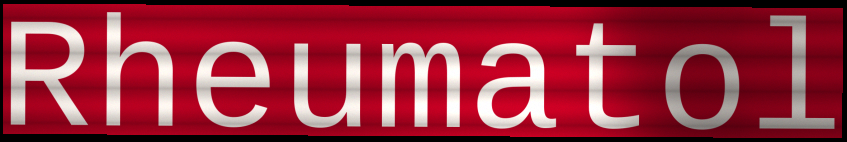
Rheumatol